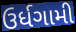
ઉર્ધગામી